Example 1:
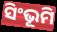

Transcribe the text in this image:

ସିଂଭୂମି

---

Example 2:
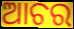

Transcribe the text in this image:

ଆଚର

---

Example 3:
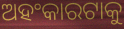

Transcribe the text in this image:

ଅହଂକାରଟାକୁ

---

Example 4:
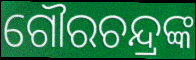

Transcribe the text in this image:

ଗୌରଚନ୍ଦ୍ରଙ୍କ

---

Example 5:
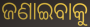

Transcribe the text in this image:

ଜଣାଇବାକୁ